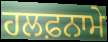
ਹਲਫ਼ਨਾਮੇ